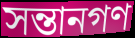
সন্তানগণ